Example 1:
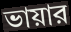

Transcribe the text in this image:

ভায়ার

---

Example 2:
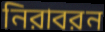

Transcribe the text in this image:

নিরাবরন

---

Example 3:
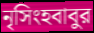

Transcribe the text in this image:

নৃসিংহবাবুর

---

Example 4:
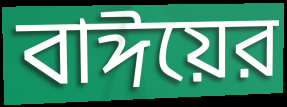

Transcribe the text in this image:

বাঈয়ের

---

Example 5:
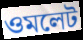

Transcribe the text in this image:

ওমলেট